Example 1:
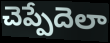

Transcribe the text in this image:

చెప్పేదెలా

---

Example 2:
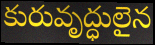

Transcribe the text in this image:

కురువృద్ధులైన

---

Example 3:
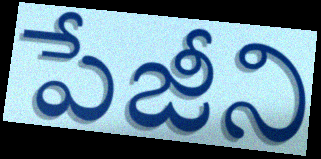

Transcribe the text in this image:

పేజీని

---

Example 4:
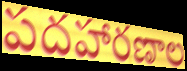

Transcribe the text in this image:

పదహారణాల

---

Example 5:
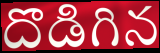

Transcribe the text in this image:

దొడిగిన